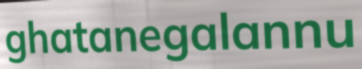
ghatanegalannu